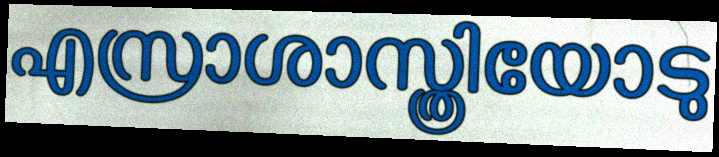
എസ്രാശാസ്ത്രിയോടു